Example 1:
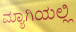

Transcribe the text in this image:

ಮ್ಯಾಗಿಯಲ್ಲಿ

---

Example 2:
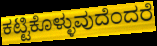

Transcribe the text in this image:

ಕಟ್ಟಿಕೊಳ್ಳುವುದೆಂದರೆ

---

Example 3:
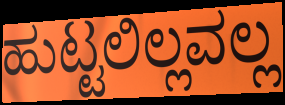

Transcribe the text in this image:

ಹುಟ್ಟಲಿಲ್ಲವಲ್ಲ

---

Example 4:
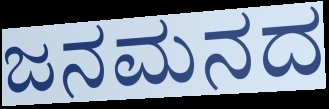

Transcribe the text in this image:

ಜನಮನದ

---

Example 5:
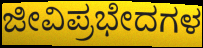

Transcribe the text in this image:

ಜೀವಿಪ್ರಭೇದಗಳ